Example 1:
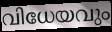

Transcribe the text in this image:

വിധേയവും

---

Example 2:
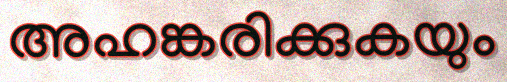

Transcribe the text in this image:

അഹങ്കരിക്കുകയും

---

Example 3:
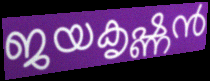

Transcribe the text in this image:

ജയകൃഷ്ണൻ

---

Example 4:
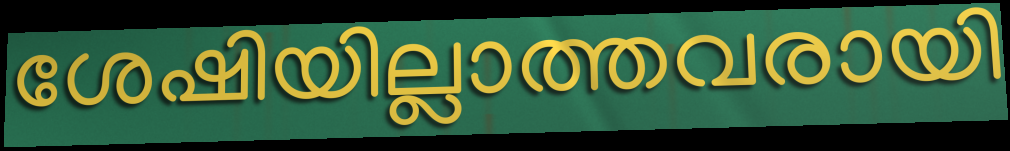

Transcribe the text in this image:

ശേഷിയില്ലാത്തവരായി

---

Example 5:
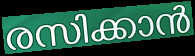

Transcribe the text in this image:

രസിക്കാൻ